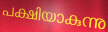
പക്ഷിയാകുന്നു